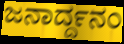
ಜನಾರ್ದ್ದನಂ